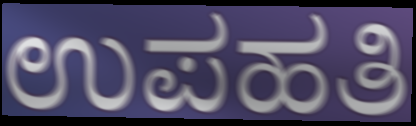
ಉಪಹತಿ